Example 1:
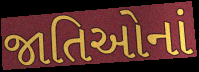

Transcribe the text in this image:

જાતિઓનાં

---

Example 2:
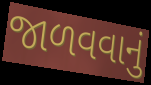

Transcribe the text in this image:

જાળવવાનું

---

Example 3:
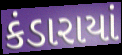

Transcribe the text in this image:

કંડારાયાં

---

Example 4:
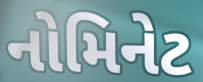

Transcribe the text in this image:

નોમિનેટ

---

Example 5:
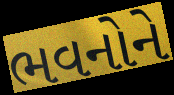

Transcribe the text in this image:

ભવનોને